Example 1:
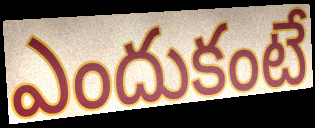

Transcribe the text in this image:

ఎందుకంటే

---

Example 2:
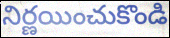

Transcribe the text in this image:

నిర్ణయించుకొండి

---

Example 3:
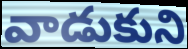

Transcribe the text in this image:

వాడుకుని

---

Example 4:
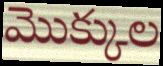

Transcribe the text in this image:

మొక్కుల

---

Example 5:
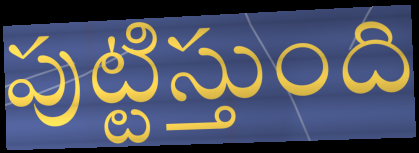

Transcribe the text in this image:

పుట్టిస్తుంది